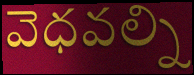
వెధవల్ని